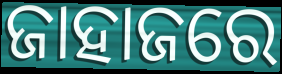
ଜାହାଜରେ